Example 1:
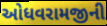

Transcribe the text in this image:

ઓધવરામજીની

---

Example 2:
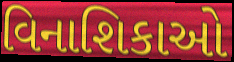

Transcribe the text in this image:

વિનાશિકાઓ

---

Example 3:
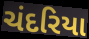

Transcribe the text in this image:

ચંદરિયા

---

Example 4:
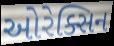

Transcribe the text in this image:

ઓરેક્સિન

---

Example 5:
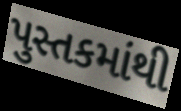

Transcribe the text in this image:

પુસ્તકમાંથી